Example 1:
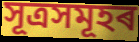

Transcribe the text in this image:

সূত্ৰসমূহৰ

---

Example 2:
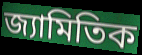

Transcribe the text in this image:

জ্যামিতিক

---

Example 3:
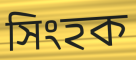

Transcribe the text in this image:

সিংহক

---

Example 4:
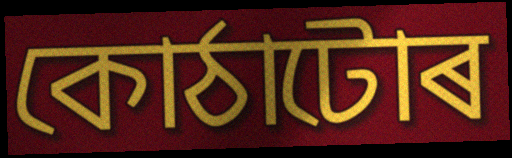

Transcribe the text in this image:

কোঠাটোৰ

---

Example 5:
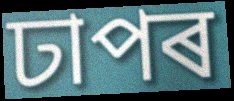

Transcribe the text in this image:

ঢাপৰ